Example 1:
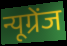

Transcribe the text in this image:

न्यूग्रेंज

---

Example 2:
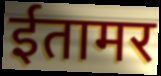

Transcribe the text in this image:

ईतामर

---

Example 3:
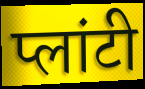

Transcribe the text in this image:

प्लांटी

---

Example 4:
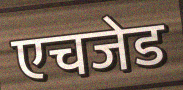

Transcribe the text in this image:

एचजेड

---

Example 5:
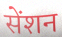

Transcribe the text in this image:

सेंशन